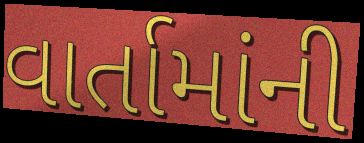
વાર્તામાંની